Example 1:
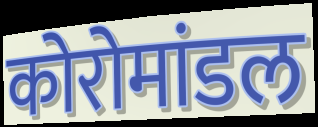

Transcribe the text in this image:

कोरोमांडल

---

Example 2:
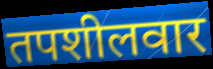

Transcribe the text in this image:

तपशीलवार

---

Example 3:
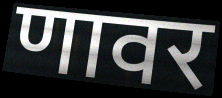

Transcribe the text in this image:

णावर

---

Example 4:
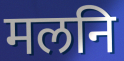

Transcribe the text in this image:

मलनि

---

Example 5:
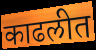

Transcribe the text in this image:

काढलीत